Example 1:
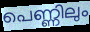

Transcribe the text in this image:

പെണ്ണിലും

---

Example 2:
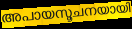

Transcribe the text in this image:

അപായസൂചനയായി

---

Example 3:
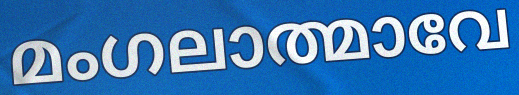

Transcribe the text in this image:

മംഗലാത്മാവേ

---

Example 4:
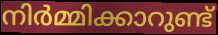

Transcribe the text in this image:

നിർമ്മിക്കാറുണ്ട്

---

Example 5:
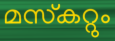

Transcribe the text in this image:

മസ്‌കറ്റും